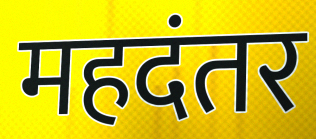
महदंतर